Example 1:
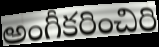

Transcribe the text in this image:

అంగీకరించిరి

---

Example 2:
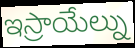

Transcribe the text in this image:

ఇస్రాయేల్ను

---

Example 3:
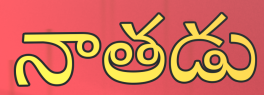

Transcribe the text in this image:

నాతడు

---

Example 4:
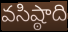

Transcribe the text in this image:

వసిష్ఠాది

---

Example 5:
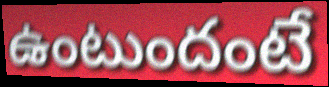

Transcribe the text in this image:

ఉంటుందంటే